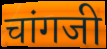
चांगजी